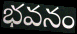
భవనం